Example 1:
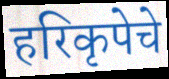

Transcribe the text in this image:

हरिकृपेचे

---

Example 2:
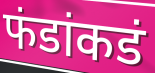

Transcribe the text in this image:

फंडांकडं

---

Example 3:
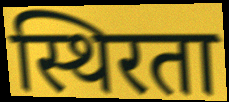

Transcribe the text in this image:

स्थिरता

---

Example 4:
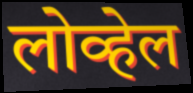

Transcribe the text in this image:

लोव्हेल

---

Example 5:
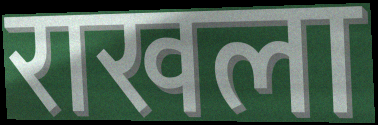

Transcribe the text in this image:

राखला